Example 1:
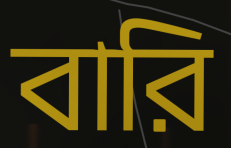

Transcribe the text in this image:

বারি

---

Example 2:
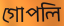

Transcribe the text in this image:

গোপলি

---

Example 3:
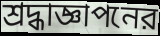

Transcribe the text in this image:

শ্রদ্ধাজ্ঞাপনের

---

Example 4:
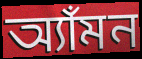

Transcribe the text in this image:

অ্যাঁমন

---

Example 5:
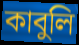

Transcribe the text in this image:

কাবুলি